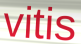
vitis